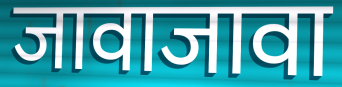
जावाजावा